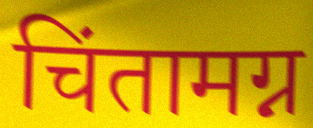
चिंतामग्न